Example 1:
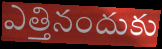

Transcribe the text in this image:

ఎత్తినందుకు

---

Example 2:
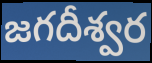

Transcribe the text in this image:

జగదీశ్వర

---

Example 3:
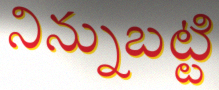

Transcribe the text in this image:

నిన్నుబట్టి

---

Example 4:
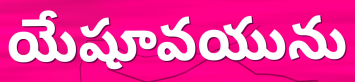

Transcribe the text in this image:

యేషూవయును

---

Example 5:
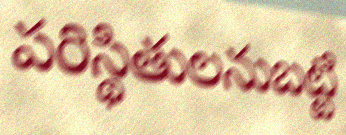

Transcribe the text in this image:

పరిస్థితులనుబట్టి